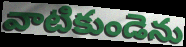
వాటికుండెను